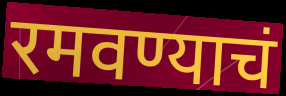
रमवण्याचं